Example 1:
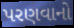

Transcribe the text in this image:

પરણવાનો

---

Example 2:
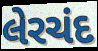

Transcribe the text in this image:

લેરચંદ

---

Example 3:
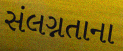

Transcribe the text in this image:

સંલગ્નતાના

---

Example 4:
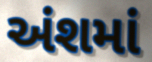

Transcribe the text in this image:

અંશમાં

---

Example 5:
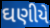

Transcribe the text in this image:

ઘણીયે